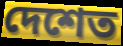
দেশেত